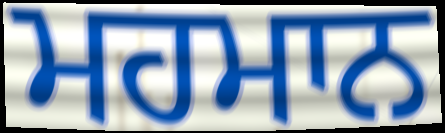
ਮਹਮਾਨ